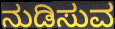
ನುಡಿಸುವ